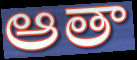
ఆతా